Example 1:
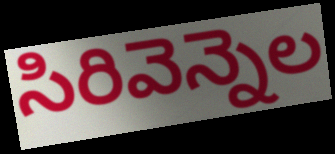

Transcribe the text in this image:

సిరివెన్నెల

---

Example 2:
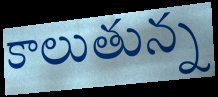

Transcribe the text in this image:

కాలుతున్న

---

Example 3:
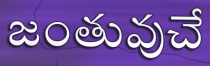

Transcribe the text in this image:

జంతువుచే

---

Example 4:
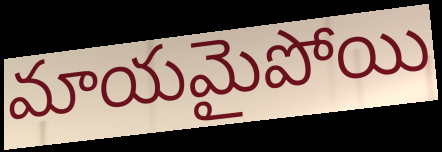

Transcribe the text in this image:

మాయమైపోయి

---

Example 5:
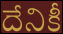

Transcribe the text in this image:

దేనికీ